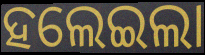
ହଲେଇଲା